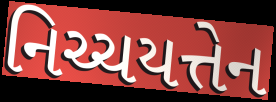
નિચ્ચયત્તેન